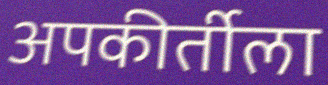
अपकीर्तीला